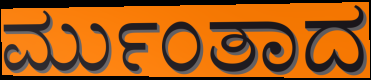
ರ್ಮುಂತಾದ